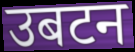
उबटन